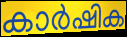
കാർഷിക